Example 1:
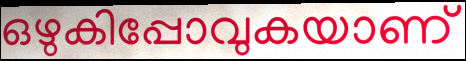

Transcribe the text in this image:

ഒഴുകിപ്പോവുകയാണ്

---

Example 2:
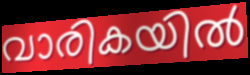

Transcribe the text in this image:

വാരികയിൽ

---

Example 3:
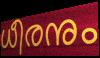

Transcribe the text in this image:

ധീരനും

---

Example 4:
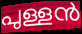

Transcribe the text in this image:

പുള്ളൻ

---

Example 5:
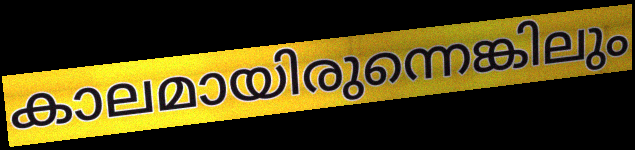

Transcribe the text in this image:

കാലമായിരുന്നെങ്കിലും